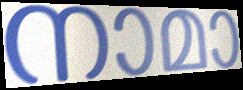
നാമാ